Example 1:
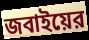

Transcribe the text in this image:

জবাইয়ের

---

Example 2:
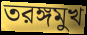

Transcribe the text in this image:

তরঙ্গমুখ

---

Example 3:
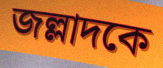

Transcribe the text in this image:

জল্লাদকে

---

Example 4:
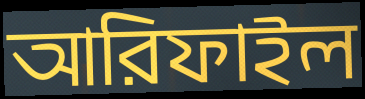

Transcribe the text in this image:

আরিফাইল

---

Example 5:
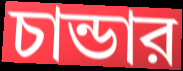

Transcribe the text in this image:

চান্ডার